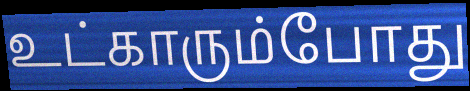
உட்காரும்போது